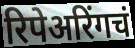
रिपेअरिंगचं